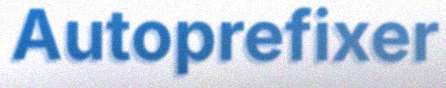
Autoprefixer